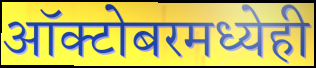
ऑक्टोबरमध्येही